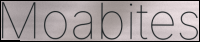
Moabites